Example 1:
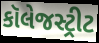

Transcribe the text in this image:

કૉલેજસ્ટ્રીટ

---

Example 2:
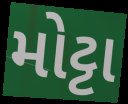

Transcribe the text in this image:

મોટ્ટા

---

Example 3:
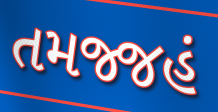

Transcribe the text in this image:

તમજ્જહં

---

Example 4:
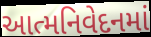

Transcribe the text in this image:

આત્મનિવેદનમાં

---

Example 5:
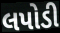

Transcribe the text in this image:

લપોડી